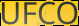
UFCO